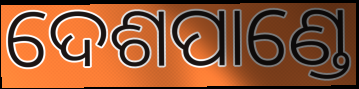
ଦେଶପାଣ୍ଡେ